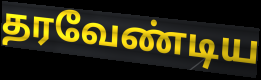
தரவேண்டிய